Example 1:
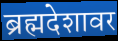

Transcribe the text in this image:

ब्रह्मदेशावर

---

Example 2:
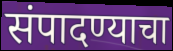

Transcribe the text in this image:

संपादण्याचा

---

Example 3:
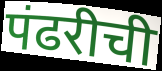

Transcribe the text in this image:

पंढरीची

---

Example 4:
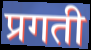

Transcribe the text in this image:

प्रगती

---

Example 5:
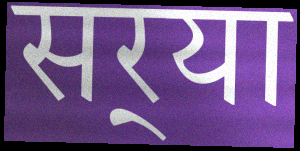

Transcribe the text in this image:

सर्या